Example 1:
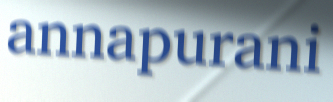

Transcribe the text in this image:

annapurani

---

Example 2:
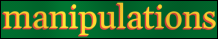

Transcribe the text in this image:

manipulations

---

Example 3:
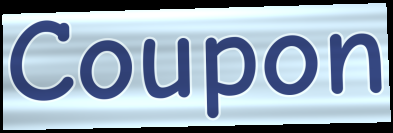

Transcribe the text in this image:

Coupon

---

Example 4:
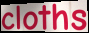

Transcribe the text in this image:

cloths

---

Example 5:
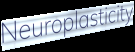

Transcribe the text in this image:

Neuroplasticity